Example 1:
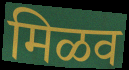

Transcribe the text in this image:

मिळव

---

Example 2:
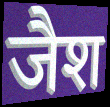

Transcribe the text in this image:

जैश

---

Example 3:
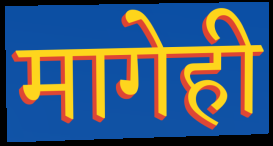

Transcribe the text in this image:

मागेही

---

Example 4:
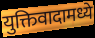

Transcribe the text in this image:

युक्तिवादामध्ये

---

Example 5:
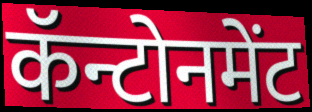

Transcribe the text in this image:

कॅन्टोनमेंट